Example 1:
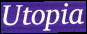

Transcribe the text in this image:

Utopia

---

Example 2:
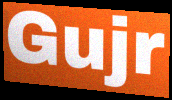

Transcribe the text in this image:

Gujr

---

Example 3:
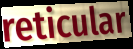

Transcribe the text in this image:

reticular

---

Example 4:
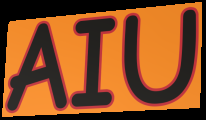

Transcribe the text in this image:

AIU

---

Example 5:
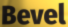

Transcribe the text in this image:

Bevel